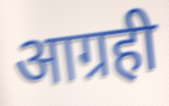
आग्रही